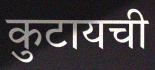
कुटायची